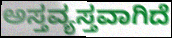
ಅಸ್ತವ್ಯಸ್ತವಾಗಿದೆ